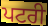
ਪਟਰੀ